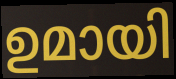
ഉമായി